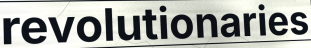
revolutionaries